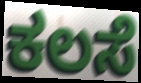
ಕಲಸೆ